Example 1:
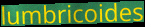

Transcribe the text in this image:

lumbricoides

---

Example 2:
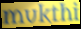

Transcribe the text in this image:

mukthi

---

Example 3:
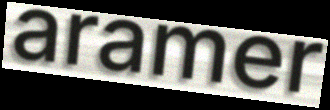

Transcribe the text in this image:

aramer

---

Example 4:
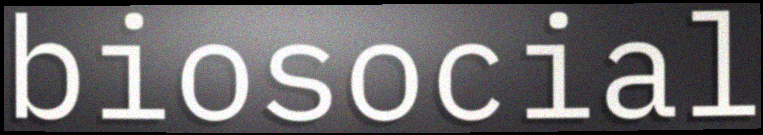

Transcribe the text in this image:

biosocial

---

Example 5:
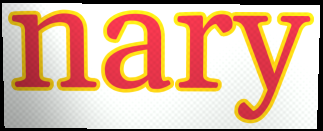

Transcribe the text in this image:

nary